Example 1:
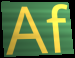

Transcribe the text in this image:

Af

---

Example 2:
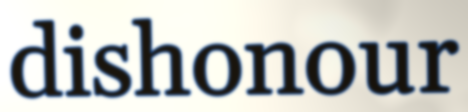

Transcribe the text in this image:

dishonour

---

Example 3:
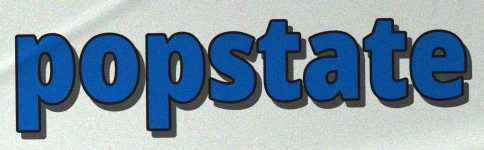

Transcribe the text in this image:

popstate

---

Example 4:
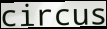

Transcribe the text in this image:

circus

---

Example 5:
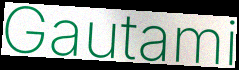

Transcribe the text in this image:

Gautami